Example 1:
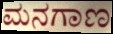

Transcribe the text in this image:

ಮನಗಾಣ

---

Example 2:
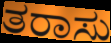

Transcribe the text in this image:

ತರಾಸು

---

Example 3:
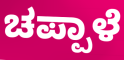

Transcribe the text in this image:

ಚಪ್ಪಾಳೆ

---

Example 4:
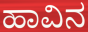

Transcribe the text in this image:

ಹಾವಿನ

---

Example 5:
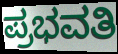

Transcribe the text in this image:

ಪ್ರಭವತಿ